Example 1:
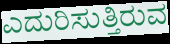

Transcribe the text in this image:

ಎದುರಿಸುತ್ತಿರುವ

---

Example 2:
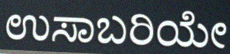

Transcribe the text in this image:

ಉಸಾಬರಿಯೇ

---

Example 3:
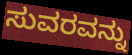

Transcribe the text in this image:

ಸುವರವನ್ನು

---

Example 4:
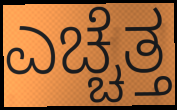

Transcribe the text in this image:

ಎಚ್ಚೆತ್ತ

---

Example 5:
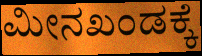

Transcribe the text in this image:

ಮೀನಖಂಡಕ್ಕೆ